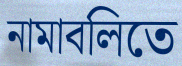
নামাবলিতে